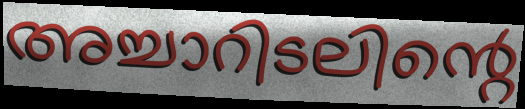
അച്ചാറിടലിന്റെ